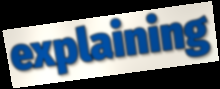
explaining